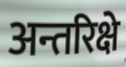
अन्तरिक्षे